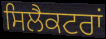
ਸਿਲੈਕਟਰਾਂ